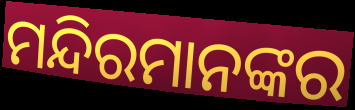
ମନ୍ଦିରମାନଙ୍କର